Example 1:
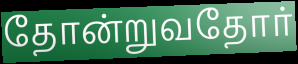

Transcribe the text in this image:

தோன்றுவதோர்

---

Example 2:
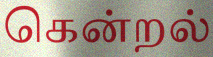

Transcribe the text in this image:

கென்றல்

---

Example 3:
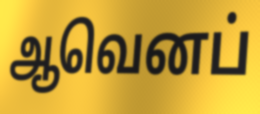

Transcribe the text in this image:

ஆவெனப்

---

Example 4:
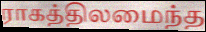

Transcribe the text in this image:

ராகத்திலமைந்த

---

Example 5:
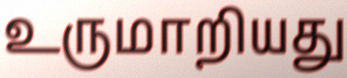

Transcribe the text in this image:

உருமாறியது